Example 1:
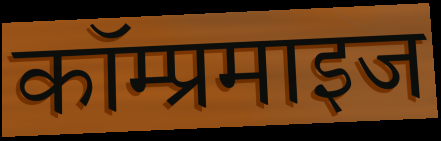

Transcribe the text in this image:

कॉम्प्रमाइज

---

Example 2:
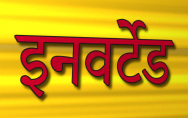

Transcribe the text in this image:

इनवर्टेड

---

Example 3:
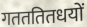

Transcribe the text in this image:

गतततितधयों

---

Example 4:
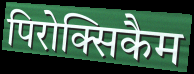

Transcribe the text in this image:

पिरोक्सिकैम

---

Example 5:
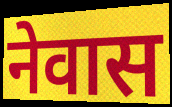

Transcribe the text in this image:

नेवास